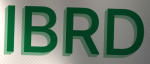
IBRD